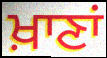
ਖ਼ਾਣਾਂ